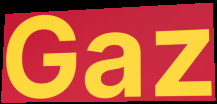
Gaz